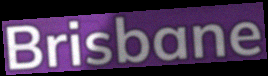
Brisbane